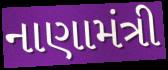
નાણામંત્રી